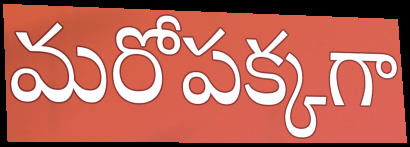
మరోపక్కగా